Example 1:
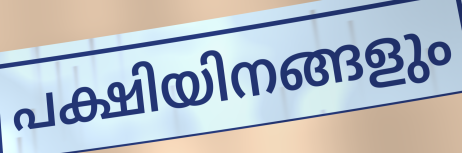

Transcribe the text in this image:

പക്ഷിയിനങ്ങളും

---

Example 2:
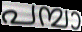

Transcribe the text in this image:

പമ്പാ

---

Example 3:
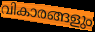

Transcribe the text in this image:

വികാരങ്ങളും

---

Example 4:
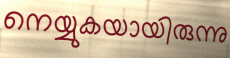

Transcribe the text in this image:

നെയ്യുകയായിരുന്നു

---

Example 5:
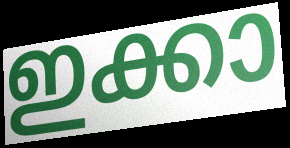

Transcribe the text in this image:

ഇക്കാ